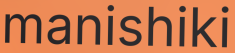
manishiki